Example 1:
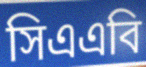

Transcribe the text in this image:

সিএএবি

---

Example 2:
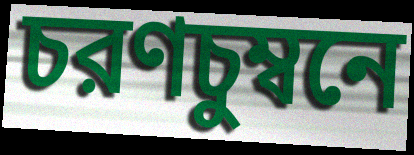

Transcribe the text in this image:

চরণচুম্বনে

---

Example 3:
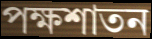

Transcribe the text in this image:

পক্ষশাতন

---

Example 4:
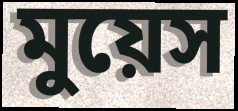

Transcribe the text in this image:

মুয়েস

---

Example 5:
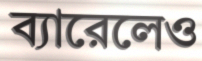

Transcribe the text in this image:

ব্যারেলেও